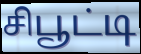
சிபூட்டி